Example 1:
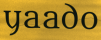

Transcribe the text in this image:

yaado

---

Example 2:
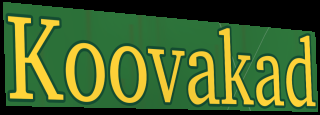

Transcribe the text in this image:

Koovakad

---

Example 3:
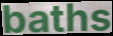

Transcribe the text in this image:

baths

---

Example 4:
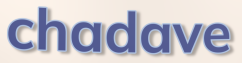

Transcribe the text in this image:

chadave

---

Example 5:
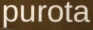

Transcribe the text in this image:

purota